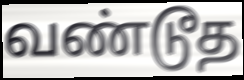
வண்டூத